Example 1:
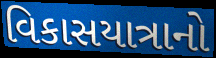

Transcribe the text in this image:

વિકાસયાત્રાનો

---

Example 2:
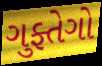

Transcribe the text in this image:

ગુફ્તેગો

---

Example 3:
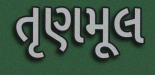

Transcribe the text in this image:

તૃણમૂલ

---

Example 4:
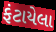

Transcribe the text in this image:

ફંટાયેલા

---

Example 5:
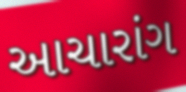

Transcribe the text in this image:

આચારાંગ